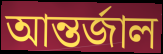
আন্তর্জাল